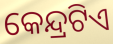
କେନ୍ଦ୍ରଟିଏ